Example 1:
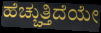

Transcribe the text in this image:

ಹೆಚ್ಚುತ್ತಿದೆಯೇ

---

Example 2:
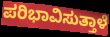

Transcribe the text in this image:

ಪರಿಭಾವಿಸುತ್ತಾಳೆ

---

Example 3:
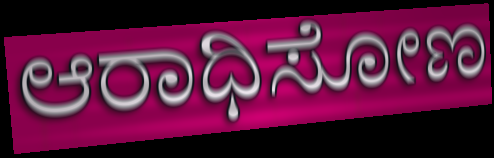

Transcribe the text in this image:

ಆರಾಧಿಸೋಣ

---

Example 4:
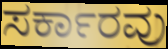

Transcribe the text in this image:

ಸರ್ಕಾರವು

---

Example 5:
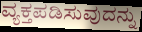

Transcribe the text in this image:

ವ್ಯಕ್ತಪಡಿಸುವುದನ್ನು